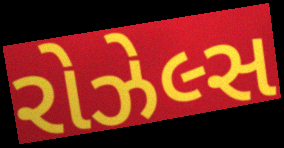
રોઝેલ્સ